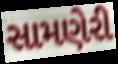
સામણેરી